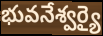
భువనేశ్వర్యై